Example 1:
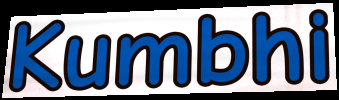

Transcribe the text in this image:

Kumbhi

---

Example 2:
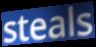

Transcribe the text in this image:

steals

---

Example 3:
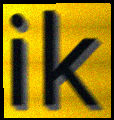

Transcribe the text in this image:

ik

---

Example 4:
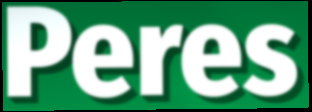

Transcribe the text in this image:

Peres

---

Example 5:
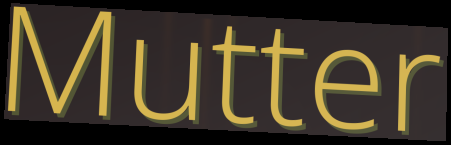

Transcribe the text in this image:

Mutter